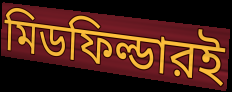
মিডফিল্ডারই